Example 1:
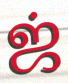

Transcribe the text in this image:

ஜ்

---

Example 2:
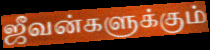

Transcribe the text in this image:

ஜீவன்களுக்கும்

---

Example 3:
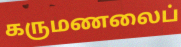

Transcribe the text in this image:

கருமணலைப்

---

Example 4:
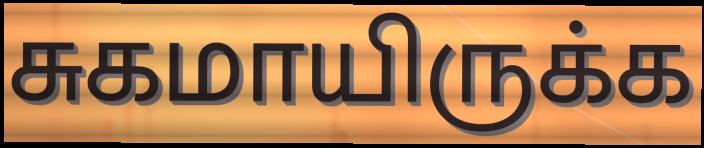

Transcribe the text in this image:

சுகமாயிருக்க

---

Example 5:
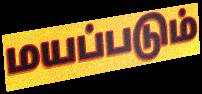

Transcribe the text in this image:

மயப்படும்